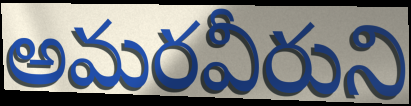
అమరవీరుని